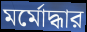
মর্মোদ্ধার